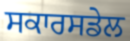
ਸਕਾਰਸਡੇਲ